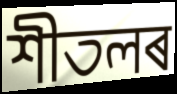
শীতলৰ